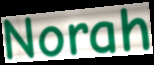
Norah